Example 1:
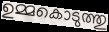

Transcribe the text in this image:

ഉമ്മകൊടുത്തു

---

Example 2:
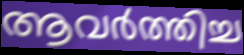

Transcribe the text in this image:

ആവർത്തിച്ച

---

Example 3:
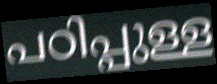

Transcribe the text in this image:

പഠിപ്പുള്ള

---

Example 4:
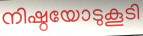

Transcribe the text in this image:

നിഷ്ഠയോടുകൂടി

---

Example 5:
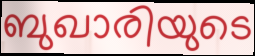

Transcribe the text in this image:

ബുഖാരിയുടെ